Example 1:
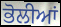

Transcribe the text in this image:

ਭੋਲੀਆਂ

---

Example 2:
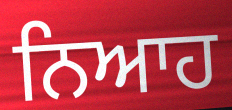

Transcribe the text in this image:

ਨਿਆਹ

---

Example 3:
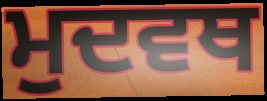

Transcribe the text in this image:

ਮੁਦਵਥ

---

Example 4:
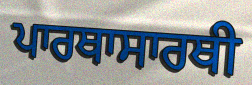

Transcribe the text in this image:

ਪਾਰਥਾਸਾਰਥੀ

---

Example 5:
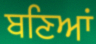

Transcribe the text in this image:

ਬਣਿਆਂ